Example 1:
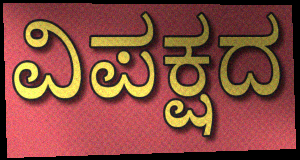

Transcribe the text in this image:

ವಿಪಕ್ಷದ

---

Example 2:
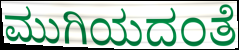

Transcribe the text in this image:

ಮುಗಿಯದಂತೆ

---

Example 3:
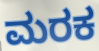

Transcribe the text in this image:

ಮರಕ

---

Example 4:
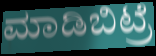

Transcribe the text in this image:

ಮಾಡಿಬಿಟ್ರೆ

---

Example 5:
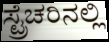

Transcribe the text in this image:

ಸ್ಟ್ರೆಚರಿನಲ್ಲಿ